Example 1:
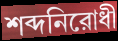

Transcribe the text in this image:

শব্দনিরোধী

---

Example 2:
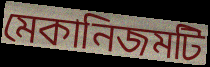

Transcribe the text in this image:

মেকানিজমটি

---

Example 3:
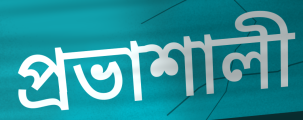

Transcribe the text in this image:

প্রভাশালী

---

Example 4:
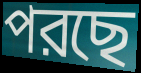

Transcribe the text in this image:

পরছে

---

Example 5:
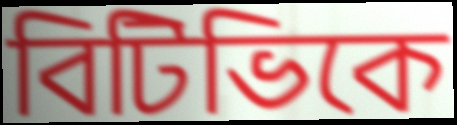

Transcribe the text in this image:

বিটিভিকে